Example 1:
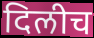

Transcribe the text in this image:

दिलीच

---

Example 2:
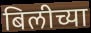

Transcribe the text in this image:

बिलीच्या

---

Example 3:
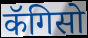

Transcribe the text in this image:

कॅगिसो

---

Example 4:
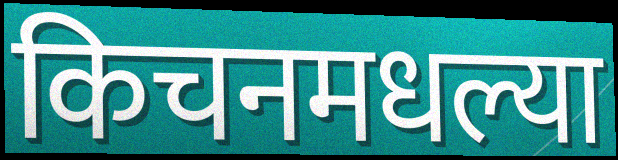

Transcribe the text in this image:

किचनमधल्या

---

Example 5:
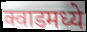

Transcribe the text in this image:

क्वाडमध्ये